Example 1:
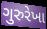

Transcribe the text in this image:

ગુરુરેખા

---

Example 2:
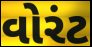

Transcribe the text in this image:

વોરંટ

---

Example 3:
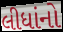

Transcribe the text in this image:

લીધાંનો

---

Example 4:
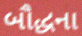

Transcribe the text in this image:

બૌદ્ધના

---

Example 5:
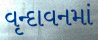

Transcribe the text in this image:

વૃન્દાવનમાં